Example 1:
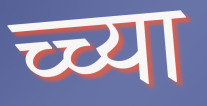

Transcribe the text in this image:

च्च्या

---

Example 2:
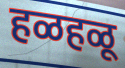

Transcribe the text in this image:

हळहळू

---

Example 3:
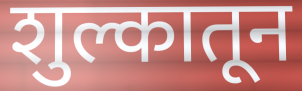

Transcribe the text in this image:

शुल्कातून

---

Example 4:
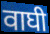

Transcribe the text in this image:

वाघी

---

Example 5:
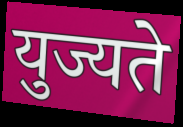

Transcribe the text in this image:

युज्यते